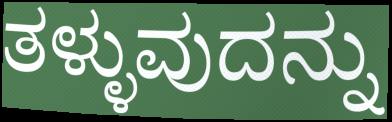
ತಳ್ಳುವುದನ್ನು